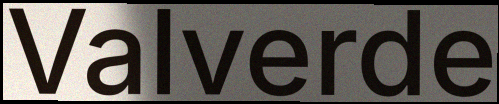
Valverde